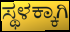
ಸ್ಥಳಕ್ಕಾಗಿ